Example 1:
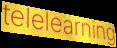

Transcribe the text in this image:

telelearning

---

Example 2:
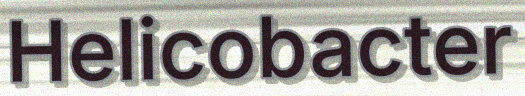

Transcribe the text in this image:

Helicobacter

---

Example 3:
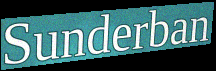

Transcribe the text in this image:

Sunderban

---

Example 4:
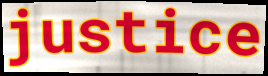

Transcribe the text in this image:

justice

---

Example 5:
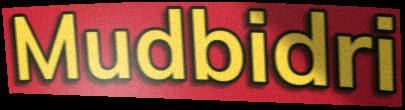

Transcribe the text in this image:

Mudbidri